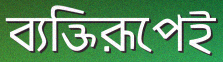
ব্যক্তিরূপেই